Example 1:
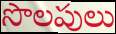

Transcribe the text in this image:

సొలపులు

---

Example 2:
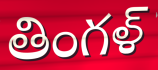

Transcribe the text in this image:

తింగళ్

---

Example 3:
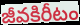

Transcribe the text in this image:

జీవకిరీటం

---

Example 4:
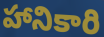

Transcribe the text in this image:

హానికారి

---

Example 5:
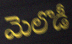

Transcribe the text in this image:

మెలొడీ